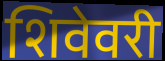
शिवेवरी